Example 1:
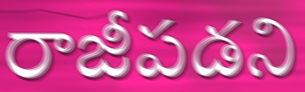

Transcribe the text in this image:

రాజీపడని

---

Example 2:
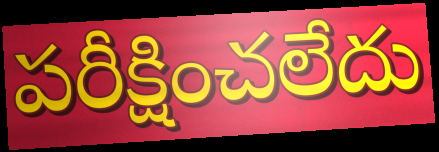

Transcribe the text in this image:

పరీక్షించలేదు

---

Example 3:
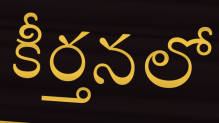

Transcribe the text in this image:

కీర్తనలో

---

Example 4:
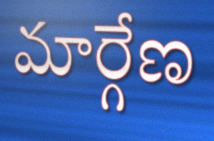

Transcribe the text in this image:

మార్గేణ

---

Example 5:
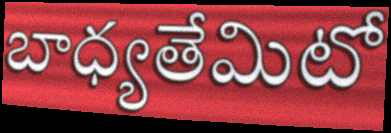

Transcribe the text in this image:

బాధ్యతేమిటో